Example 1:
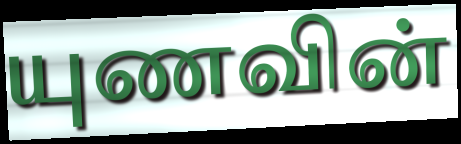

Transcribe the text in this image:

யுணவின்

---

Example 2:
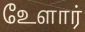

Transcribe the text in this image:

உேளார்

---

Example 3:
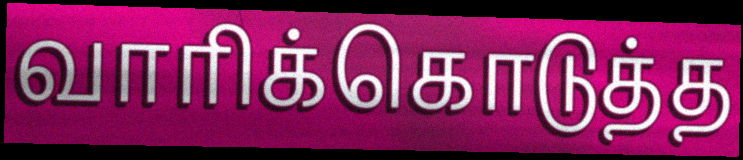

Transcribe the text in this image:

வாரிக்கொடுத்த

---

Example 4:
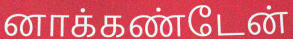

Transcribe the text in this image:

னாக்கண்டேன்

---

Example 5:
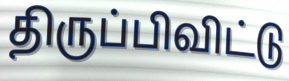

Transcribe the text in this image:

திருப்பிவிட்டு